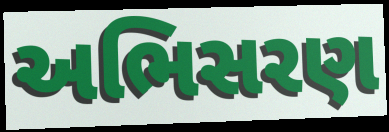
અભિસરણ